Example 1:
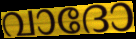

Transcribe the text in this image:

വാദോ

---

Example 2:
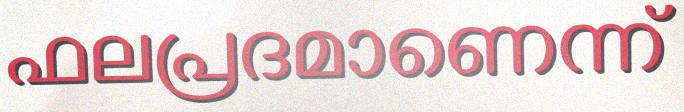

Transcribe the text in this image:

ഫലപ്രദമാണെന്ന്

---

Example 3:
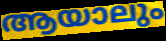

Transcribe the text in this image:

ആയാലും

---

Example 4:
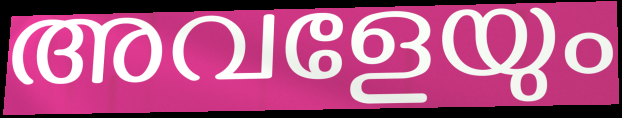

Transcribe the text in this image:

അവളേയും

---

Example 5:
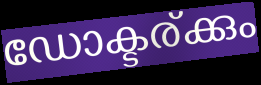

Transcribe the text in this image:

ഡോക്ടര്ക്കും